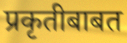
प्रकृतीबाबत